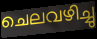
ചെലവഴിച്ചു